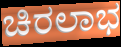
ಚಿರಲಾಭ